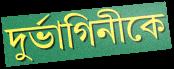
দুর্ভাগিনীকে